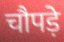
चौपड़े